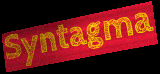
Syntagma